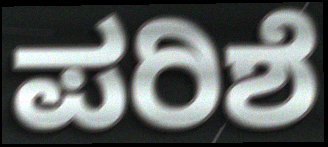
ಪರಿಶೆ